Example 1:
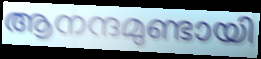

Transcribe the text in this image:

ആനന്ദമുണ്ടായി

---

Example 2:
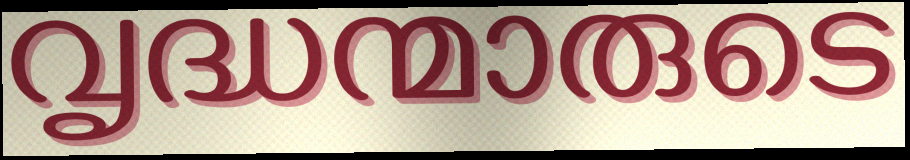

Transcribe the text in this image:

വൃദ്ധന്മാരുടെ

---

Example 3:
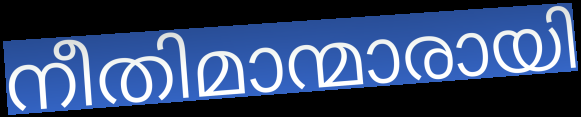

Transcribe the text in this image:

നീതിമാന്മാരായി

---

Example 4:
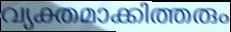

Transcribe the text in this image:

വ്യക്തമാക്കിത്തരും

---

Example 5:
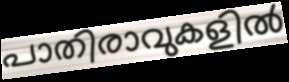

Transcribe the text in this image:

പാതിരാവുകളിൽ